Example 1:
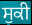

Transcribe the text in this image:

ਸੁਕੀ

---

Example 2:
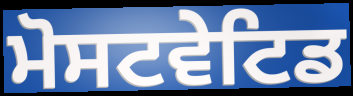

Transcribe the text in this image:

ਮੋਸਟਵੇਟਿਡ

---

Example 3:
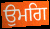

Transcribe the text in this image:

ਉਮਗਿ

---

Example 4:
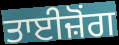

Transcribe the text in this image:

ਤਾਈਜ਼ੋਂਗ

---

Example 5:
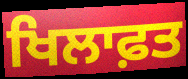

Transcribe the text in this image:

ਖਿਲਾਫ਼ਤ